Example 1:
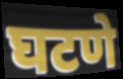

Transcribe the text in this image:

घटणे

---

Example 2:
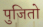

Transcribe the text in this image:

पुजितो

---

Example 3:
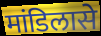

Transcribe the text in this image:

मांडिलासे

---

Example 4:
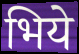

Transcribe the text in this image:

भिये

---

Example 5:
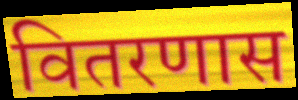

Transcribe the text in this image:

वितरणास